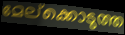
മേല്ക്കൊടുത്ത